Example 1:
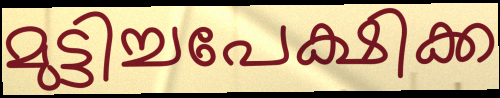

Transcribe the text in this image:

മുട്ടിച്ചപേക്ഷിക്ക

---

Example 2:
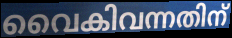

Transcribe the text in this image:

വൈകിവന്നതിന്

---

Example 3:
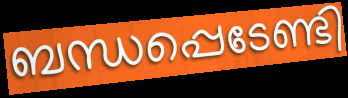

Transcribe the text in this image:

ബന്ധപ്പെടേണ്ടി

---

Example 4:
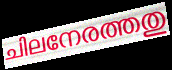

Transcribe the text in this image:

ചിലനേരത്തതു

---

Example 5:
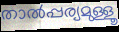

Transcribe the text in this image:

താൽപ്പര്യമുള്ളൂ